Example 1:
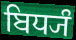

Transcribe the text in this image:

ਬਿਧ੍ਯੰ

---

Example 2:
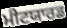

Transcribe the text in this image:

ਮੀਟਯਾਰਡ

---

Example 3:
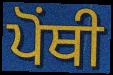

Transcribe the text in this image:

ਪੋਂਥੀ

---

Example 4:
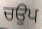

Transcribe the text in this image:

ਚਉਪ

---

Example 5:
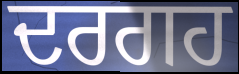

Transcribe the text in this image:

ਦਰਗਹ